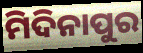
ମିଦିନାପୁର